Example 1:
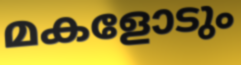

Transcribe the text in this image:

മകളോടും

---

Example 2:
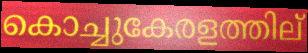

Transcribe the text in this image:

കൊച്ചുകേരളത്തില്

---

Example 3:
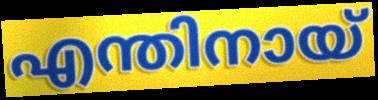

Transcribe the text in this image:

എന്തിനായ്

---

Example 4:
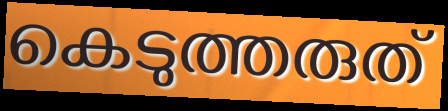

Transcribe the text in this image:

കെടുത്തരുത്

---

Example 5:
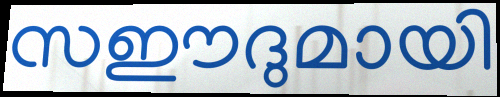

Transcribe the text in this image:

സഈദുമായി